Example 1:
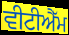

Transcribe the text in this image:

ਵੀਟੀਐੱਮ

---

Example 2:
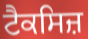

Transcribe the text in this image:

ਟੈਕਸਿਜ਼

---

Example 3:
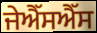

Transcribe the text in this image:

ਜੇਐੱਸਐੱਸ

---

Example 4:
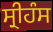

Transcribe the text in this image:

ਸ੍ਰੀਹੰਸ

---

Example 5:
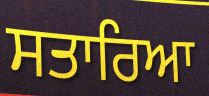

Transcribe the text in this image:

ਸਤਾਰਿਆ